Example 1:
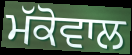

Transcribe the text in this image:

ਮੱਕੋਵਾਲ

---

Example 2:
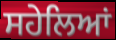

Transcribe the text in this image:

ਸਹੇਲਿਆਂ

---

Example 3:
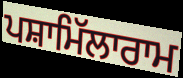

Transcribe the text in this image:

ਪਸ਼ਾਮਿੱਲਾਰਾਮ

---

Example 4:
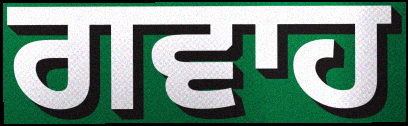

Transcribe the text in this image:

ਗਵਾਹ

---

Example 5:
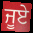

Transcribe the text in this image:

ਜੂਏ